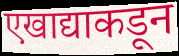
एखाद्याकडून